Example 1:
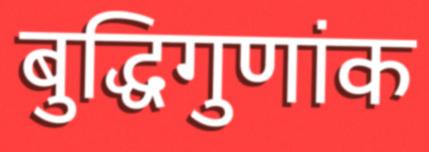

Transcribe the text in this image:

बुद्धिगुणांक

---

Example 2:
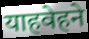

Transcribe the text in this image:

याहवेहने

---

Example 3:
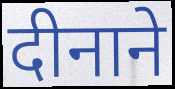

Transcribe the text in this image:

दीनाने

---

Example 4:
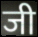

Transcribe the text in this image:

जी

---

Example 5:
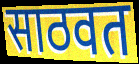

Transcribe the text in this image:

साठवत